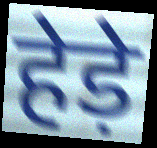
हेड़े